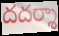
దదర్శా